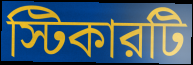
স্টিকারটি